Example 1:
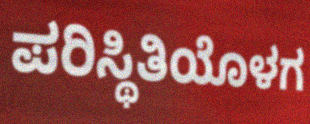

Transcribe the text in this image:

ಪರಿಸ್ಥಿತಿಯೊಳಗ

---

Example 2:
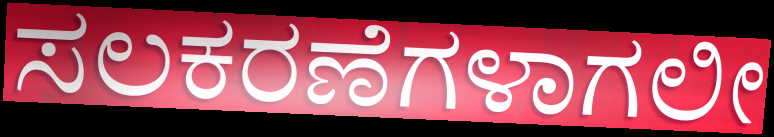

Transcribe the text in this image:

ಸಲಕರಣೆಗಳಾಗಲೀ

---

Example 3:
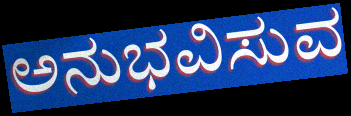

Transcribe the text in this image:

ಅನುಭವಿಸುವ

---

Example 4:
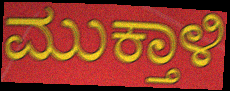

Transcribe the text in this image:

ಮುಕ್ತಾಳಿ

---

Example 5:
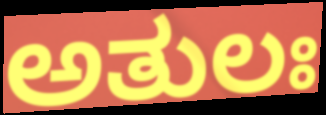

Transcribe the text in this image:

ಅತುಲಃ